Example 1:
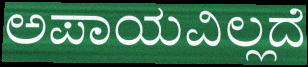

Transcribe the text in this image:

ಅಪಾಯವಿಲ್ಲದೆ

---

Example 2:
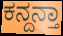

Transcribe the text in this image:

ಕನ್ದನ್ತಾ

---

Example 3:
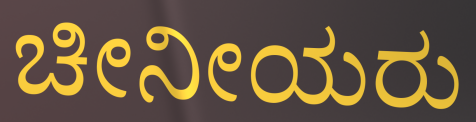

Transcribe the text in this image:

ಚೀನೀಯರು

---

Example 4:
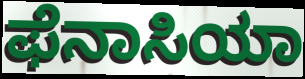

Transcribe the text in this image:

ಫೆನಾಸಿಯಾ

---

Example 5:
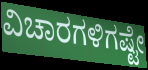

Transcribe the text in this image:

ವಿಚಾರಗಳಿಗಷ್ಟೇ